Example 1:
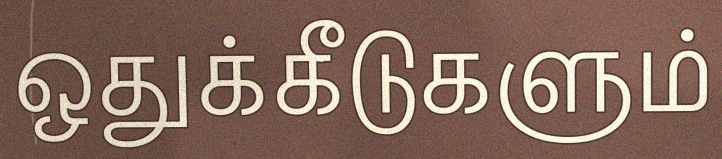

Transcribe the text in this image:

ஒதுக்கீடுகளும்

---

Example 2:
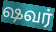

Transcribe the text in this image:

ஷவர்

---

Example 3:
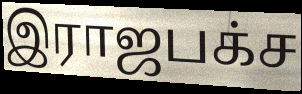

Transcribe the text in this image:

இராஜபக்ச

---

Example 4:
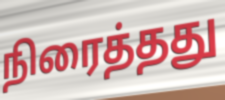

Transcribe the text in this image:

நிரைத்தது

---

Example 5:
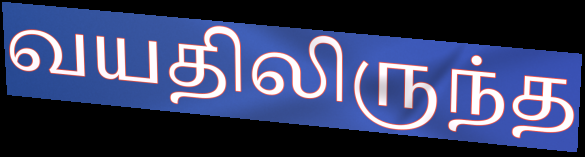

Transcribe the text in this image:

வயதிலிருந்த